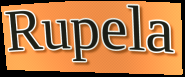
Rupela